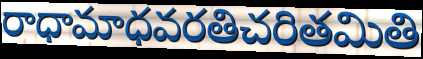
రాధామాధవరతిచరితమితి